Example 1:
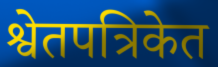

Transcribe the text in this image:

श्वेतपत्रिकेत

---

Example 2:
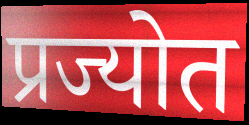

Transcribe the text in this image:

प्रज्योत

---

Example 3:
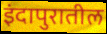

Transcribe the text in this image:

इंदापुरातील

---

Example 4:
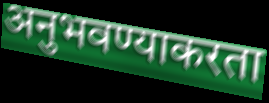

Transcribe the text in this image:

अनुभवण्याकरता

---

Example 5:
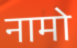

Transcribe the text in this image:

नामो